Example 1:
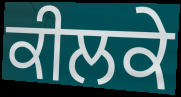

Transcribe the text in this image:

ਕੀਲਕੇ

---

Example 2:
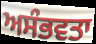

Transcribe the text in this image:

ਅਸੰਭਵਤਾ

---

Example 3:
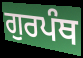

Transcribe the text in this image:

ਗੁਰਪੰਥ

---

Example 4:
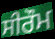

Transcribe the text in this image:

ਸੀਰੌਮ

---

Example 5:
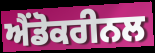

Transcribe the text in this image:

ਐਂਡੋਕਰੀਨਲ